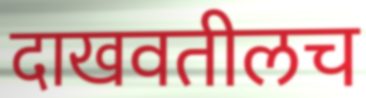
दाखवतीलच